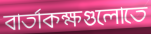
বার্তাকক্ষগুলোতে